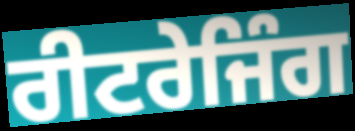
ਰੀਟਰੇਜਿੰਗ